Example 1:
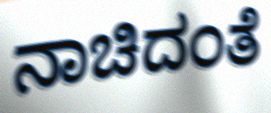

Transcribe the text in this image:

ನಾಚಿದಂತೆ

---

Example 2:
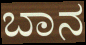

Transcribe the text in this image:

ಬಾನ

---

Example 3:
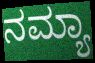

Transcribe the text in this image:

ನಮ್ಯಾ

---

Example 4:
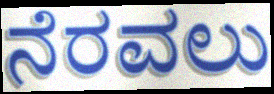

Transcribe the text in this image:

ನೆರವಲು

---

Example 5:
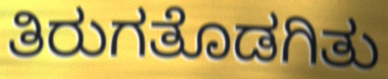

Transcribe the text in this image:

ತಿರುಗತೊಡಗಿತು